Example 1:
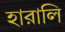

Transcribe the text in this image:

হারালি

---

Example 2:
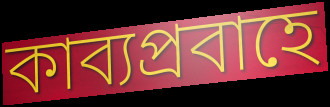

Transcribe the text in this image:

কাব্যপ্রবাহে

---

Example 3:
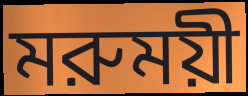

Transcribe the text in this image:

মরুময়ী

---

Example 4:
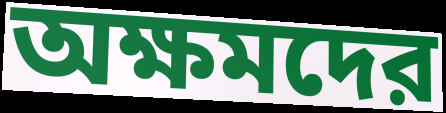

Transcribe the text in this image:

অক্ষমদের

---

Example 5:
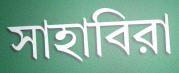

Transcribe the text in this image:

সাহাবিরা